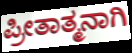
ಪ್ರೀತಾತ್ಮನಾಗಿ